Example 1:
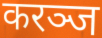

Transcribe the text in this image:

करञ्ज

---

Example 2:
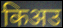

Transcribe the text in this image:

किअउ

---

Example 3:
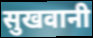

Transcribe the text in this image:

सुखवानी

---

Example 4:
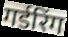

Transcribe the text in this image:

गर्डरिंग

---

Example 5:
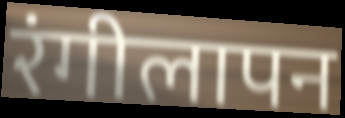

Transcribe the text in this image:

रंगीलापन